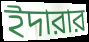
ইদারার